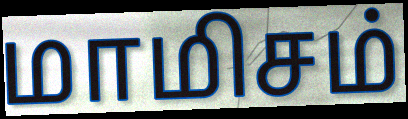
மாமிசம்